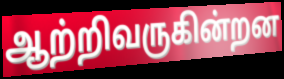
ஆற்றிவருகின்றன